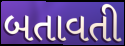
બતાવતી